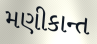
મણીકાન્ત